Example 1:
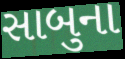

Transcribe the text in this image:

સાબુના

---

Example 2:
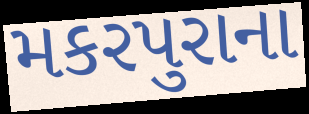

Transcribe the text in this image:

મકરપુરાના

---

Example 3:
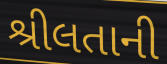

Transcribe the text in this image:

શ્રીલતાની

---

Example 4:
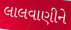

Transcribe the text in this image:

લાલવાણીને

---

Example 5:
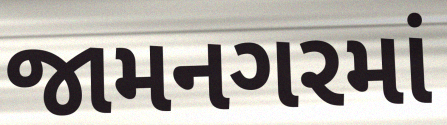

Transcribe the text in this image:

જામનગરમાં